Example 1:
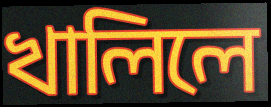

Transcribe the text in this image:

খালিলে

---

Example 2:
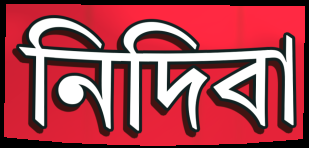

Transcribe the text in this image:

নিদিবা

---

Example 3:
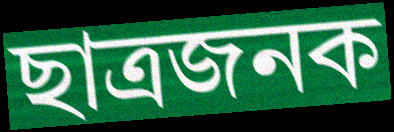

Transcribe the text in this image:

ছাত্ৰজনক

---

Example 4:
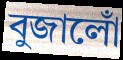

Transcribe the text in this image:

বুজালোঁ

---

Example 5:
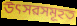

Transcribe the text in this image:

উৎসৱসমূহত